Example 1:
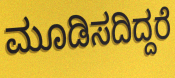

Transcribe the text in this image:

ಮೂಡಿಸದಿದ್ದರೆ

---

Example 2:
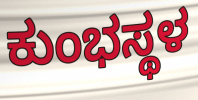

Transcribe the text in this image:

ಕುಂಭಸ್ಥಳ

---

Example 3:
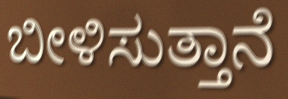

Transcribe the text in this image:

ಬೀಳಿಸುತ್ತಾನೆ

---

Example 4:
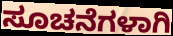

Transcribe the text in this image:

ಸೂಚನೆಗಳಾಗಿ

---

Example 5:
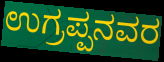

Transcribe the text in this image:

ಉಗ್ರಪ್ಪನವರ